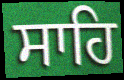
ਸਾਹਿ